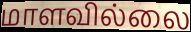
மாளவில்லை